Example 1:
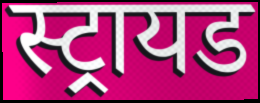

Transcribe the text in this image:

स्ट्रायड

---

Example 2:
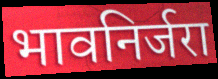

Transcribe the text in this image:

भावनिर्जरा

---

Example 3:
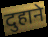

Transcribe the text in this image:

दुहाने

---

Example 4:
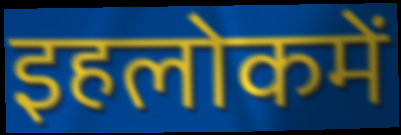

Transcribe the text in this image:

इहलोकमें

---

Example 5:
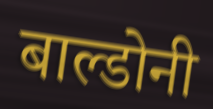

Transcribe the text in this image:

बाल्डोनी